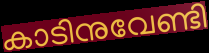
കാടിനുവേണ്ടി